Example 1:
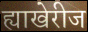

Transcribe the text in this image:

ह्याखेरीज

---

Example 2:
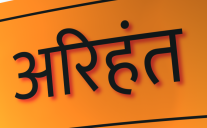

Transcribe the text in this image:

अरिहंत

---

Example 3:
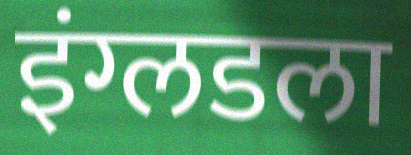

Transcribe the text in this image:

इंग्लडला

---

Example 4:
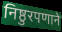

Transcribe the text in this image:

निष्ठुरपणाने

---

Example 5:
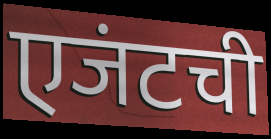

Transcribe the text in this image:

एजंटची